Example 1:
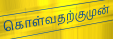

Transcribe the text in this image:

கொள்வதற்குமுன்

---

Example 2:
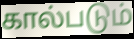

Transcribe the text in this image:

கால்படும்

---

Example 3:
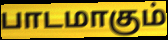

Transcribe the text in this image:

பாடமாகும்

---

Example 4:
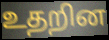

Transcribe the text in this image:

உதறின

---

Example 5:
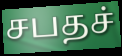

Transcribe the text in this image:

சபதச்